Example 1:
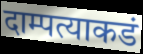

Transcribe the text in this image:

दाम्पत्याकडं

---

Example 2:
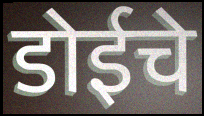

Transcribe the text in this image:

डोईचे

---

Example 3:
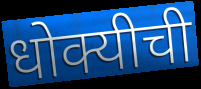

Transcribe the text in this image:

धोक्यीची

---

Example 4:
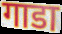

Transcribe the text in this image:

गाडा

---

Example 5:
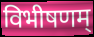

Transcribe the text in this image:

विभीषणम्